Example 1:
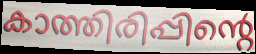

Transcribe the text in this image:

കാത്തിരിപ്പിന്റെ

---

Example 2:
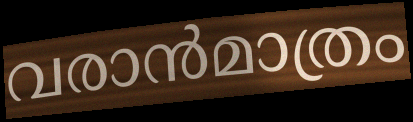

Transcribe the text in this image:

വരാൻമാത്രം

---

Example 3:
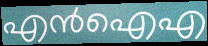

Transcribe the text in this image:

എൻഐഎ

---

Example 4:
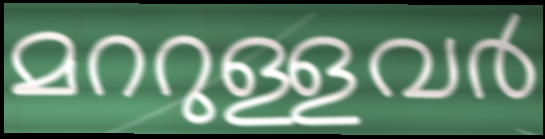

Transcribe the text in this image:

മററുള്ളവർ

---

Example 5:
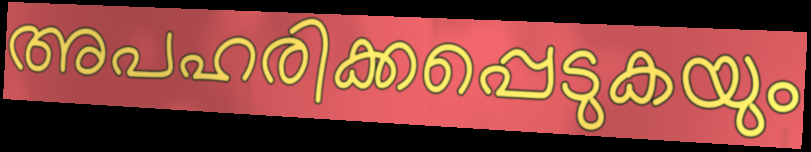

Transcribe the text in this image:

അപഹരിക്കപ്പെടുകയും